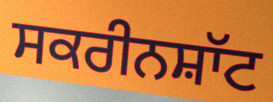
ਸਕਰੀਨਸ਼ਾੱਟ